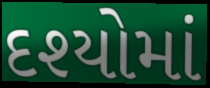
દશ્યોમાં